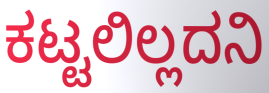
ಕಟ್ಟಲಿಲ್ಲದನಿ